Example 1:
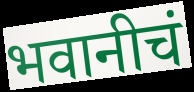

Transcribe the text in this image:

भवानीचं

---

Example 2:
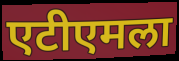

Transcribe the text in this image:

एटीएमला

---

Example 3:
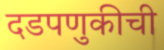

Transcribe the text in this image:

दडपणुकीची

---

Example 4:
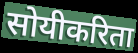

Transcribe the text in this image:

सोयीकरिता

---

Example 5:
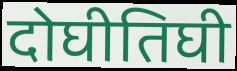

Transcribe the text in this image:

दोघीतिघी